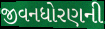
જીવનધોરણની